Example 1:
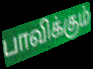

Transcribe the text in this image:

பாவிக்கும்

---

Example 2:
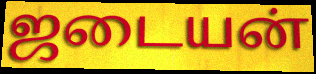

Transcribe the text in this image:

ஜடையன்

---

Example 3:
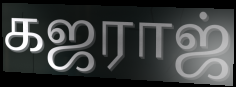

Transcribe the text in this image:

கஜராஜ்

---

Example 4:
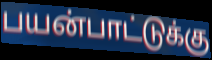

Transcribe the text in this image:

பயன்பாட்டுக்கு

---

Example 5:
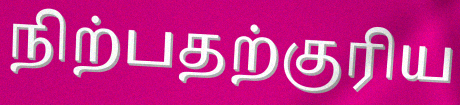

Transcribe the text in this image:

நிற்பதற்குரிய